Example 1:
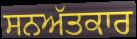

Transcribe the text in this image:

ਸਨਅੱਤਕਾਰ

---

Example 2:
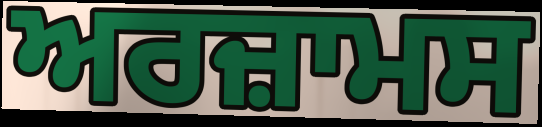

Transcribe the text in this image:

ਅਰਜ਼ਾਮਸ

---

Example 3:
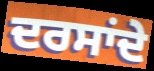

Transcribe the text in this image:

ਦਰਸਾਂਦੇ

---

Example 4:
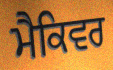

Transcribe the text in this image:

ਮੈਕਿਵਰ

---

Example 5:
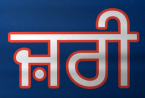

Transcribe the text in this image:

ਜ਼ਰੀ